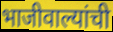
भाजीवाल्यांची